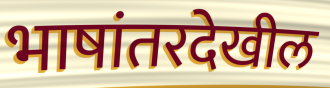
भाषांतरदेखील